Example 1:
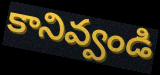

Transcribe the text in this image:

కానివ్వండి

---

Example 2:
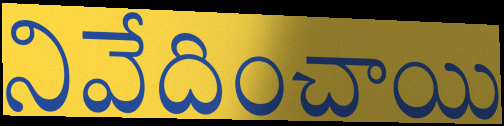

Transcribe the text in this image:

నివేదించాయి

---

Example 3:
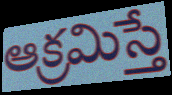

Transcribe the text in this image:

ఆక్రమిస్తే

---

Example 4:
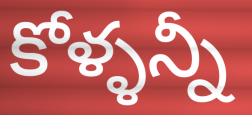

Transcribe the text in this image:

కోళ్ళన్నీ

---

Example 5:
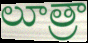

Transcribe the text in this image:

లూత్రా